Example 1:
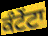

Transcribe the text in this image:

ਕੰਟੇਂਟਾ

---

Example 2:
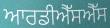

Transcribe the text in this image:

ਆਰਡੀਐੱਸਐੱਸ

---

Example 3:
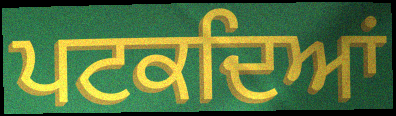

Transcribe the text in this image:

ਪਟਕਦਿਆਂ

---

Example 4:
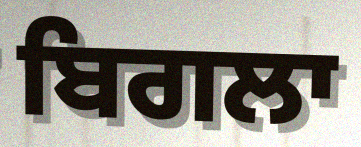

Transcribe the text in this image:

ਬਿਗਲਾ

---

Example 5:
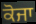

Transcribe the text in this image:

ਕੋਜਾ